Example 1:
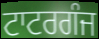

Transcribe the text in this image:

ਟਾਟਰਗੰਜ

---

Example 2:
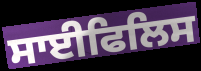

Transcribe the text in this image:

ਸਾਈਫਿਲਿਸ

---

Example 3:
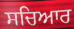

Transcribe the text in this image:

ਸਚਿਆਰ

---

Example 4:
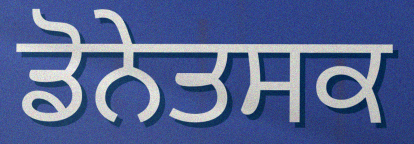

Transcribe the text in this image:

ਡੋਨੇਤਸਕ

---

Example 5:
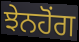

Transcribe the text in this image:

ਝੇਨਹੋਂਗ